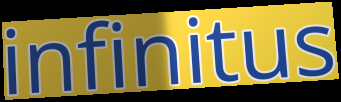
infinitus